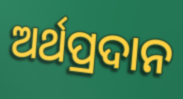
ଅର୍ଥପ୍ରଦାନ